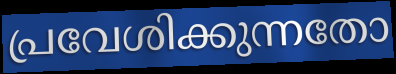
പ്രവേശിക്കുന്നതോ